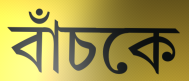
বাঁচকে